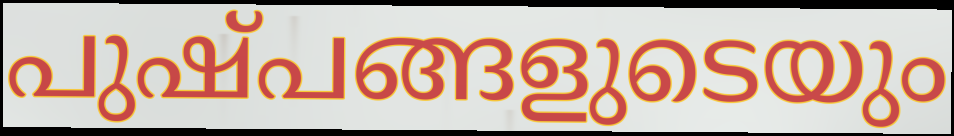
പുഷ്പങ്ങളുടെയും